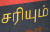
சரியும்